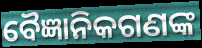
ବୈଜ୍ଞାନିକଗଣଙ୍କ